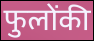
फुलोंकी